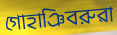
গোহাঞিবৰুৱা